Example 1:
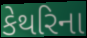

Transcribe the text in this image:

કેથરિના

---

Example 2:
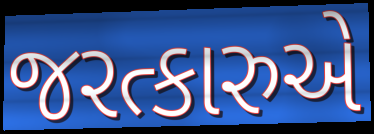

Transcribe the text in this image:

જરત્કારુએ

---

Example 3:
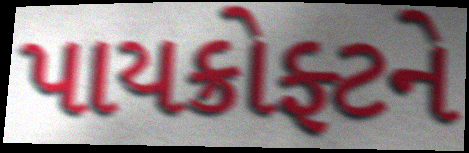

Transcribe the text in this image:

પાયક્રોફ્ટને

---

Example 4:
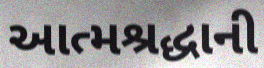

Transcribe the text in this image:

આત્મશ્રદ્ધાની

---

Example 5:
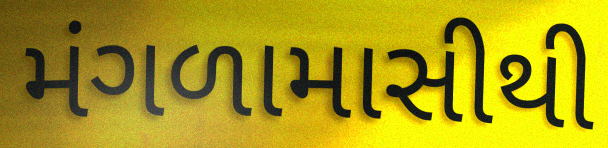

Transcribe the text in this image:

મંગળામાસીથી